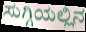
ಸುಗ್ಗಿಯಲ್ಲಿನ